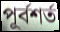
পূর্বশর্ত